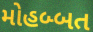
મોહબ્બત